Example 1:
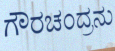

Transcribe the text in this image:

ಗೌರಚಂದ್ರನು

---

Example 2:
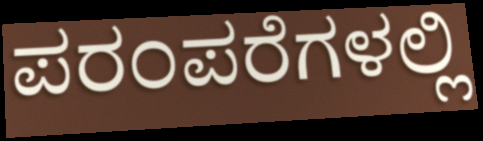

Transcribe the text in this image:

ಪರಂಪರೆಗಳಲ್ಲಿ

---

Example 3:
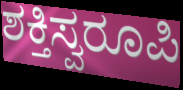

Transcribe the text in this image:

ಶಕ್ತಿಸ್ವರೂಪಿ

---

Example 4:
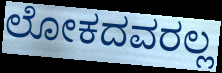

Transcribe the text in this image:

ಲೋಕದವರಲ್ಲ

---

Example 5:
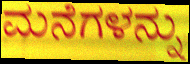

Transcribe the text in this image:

ಮನೆಗಳನ್ನು